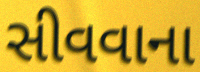
સીવવાના